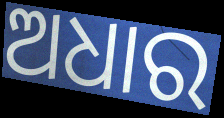
ଅଧାର